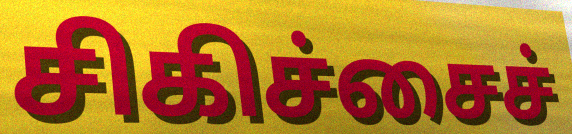
சிகிச்சைச்